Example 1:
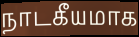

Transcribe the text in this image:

நாடகீயமாக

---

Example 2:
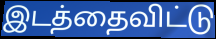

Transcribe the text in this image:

இடத்தைவிட்டு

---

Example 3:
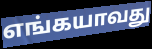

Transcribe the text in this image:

எங்கயாவது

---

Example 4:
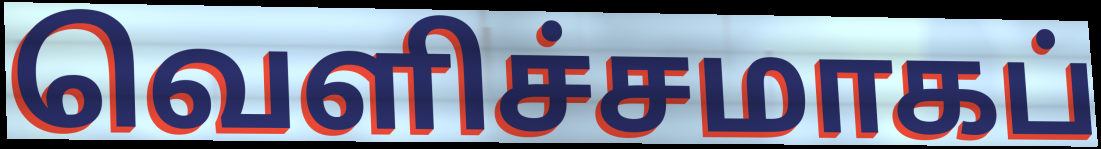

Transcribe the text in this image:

வெளிச்சமாகப்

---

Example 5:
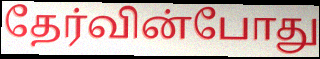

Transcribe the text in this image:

தேர்வின்போது